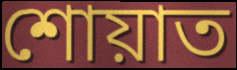
শোয়াত